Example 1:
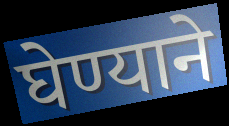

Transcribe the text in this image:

घेण्याने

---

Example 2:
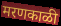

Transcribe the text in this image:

मरणकाळी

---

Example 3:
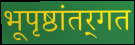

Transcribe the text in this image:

भूपृष्ठांतर्गत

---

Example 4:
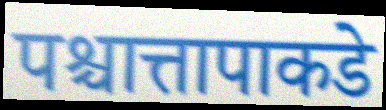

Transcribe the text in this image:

पश्चात्तापाकडे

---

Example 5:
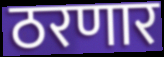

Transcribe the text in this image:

ठरणार